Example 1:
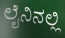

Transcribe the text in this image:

ಲೈನಿನಲ್ಲಿ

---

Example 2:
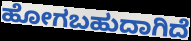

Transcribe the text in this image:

ಹೋಗಬಹುದಾಗಿದೆ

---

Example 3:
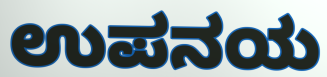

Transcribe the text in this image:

ಉಪನಯ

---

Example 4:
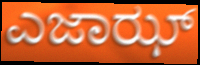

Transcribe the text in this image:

ಎಜಾಝ್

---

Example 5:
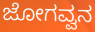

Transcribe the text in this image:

ಜೋಗವ್ವನ